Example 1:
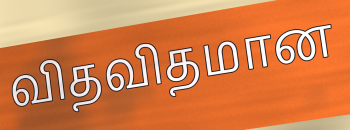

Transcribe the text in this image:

விதவிதமான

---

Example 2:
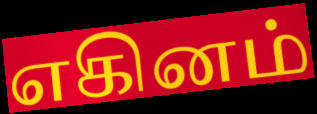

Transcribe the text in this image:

எகினம்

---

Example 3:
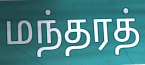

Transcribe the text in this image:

மந்தரத்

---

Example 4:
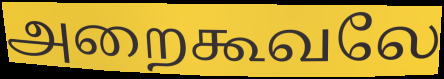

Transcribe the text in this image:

அறைகூவலே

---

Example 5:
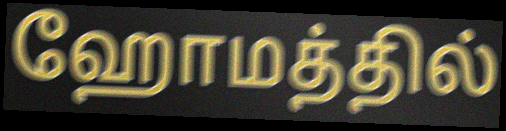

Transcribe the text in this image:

ஹோமத்தில்